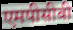
एमपीसीबी